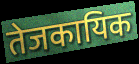
तेजकायिक